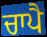
ਚਾਪੈ